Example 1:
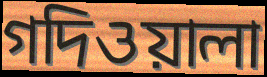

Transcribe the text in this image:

গদিওয়ালা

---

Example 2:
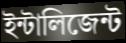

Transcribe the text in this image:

ইন্টালিজেন্ট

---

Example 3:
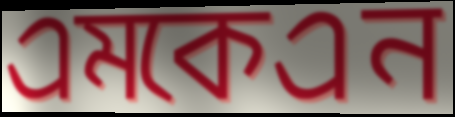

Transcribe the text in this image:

এমকেএন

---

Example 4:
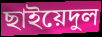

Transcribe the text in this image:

ছাইয়েদুল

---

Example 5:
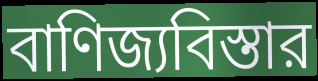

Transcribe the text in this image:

বাণিজ্যবিস্তার